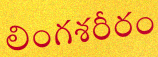
లింగశరీరం